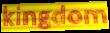
kingdom